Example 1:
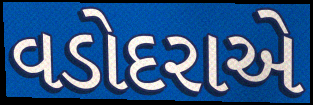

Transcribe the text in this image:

વડોદરાએ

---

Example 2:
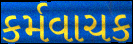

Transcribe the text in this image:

કર્મવાચક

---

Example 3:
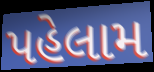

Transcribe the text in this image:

પહેલામ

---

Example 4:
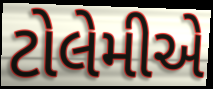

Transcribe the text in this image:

ટોલેમીએ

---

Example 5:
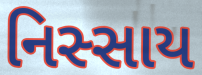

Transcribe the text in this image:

નિસ્સાય